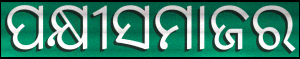
ପକ୍ଷୀସମାଜର